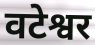
वटेश्वर